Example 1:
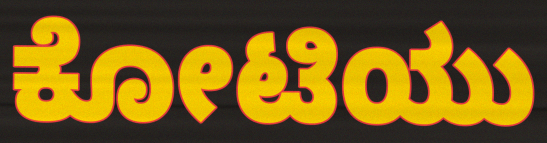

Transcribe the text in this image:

ಕೋಟಿಯು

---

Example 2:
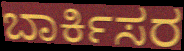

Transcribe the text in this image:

ಬಾರ್ಕಿಸರ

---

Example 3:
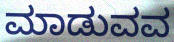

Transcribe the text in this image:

ಮಾಡುವವ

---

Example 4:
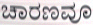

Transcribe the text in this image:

ಚಾರಣವೂ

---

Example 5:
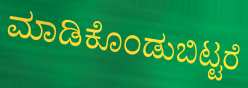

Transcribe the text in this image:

ಮಾಡಿಕೊಂಡುಬಿಟ್ಟರೆ